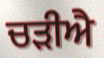
ਚੜੀਐ